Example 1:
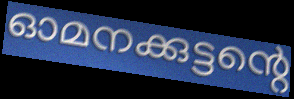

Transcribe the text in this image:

ഓമനക്കുട്ടന്റെ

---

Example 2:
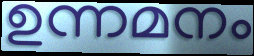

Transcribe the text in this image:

ഉന്നമനം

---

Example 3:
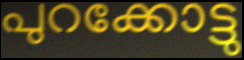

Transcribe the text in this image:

പുറക്കോട്ടു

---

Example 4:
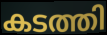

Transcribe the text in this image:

കടത്തി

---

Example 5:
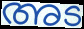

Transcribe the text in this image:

അട